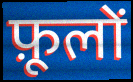
फ़ूलों